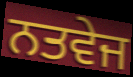
ਨਤਵੇਜ